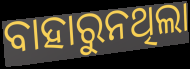
ବାହାରୁନଥିଲା